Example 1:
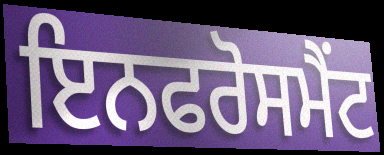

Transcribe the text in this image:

ਇਨਫਰੋਸਮੈਂਟ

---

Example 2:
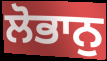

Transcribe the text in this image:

ਲੋਭਾਨੁ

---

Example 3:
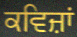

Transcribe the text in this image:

ਕਵਿਜ਼ਾਂ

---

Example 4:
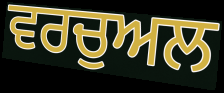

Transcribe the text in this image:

ਵਰਚੁਅਲ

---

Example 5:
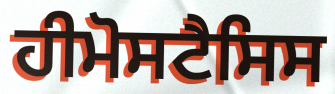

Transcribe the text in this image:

ਹੀਮੋਸਟੈਸਿਸ